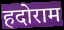
हदोराम